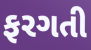
ફરગતી